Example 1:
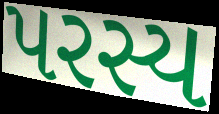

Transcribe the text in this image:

પરસ્ય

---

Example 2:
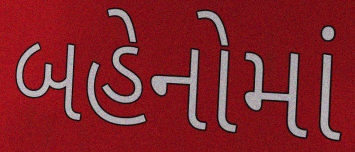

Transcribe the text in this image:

બહેનોમાં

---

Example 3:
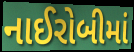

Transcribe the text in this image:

નાઈરોબીમાં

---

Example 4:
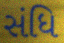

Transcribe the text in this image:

સંધિ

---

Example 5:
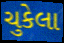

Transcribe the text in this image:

ચુકેલા